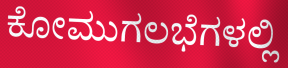
ಕೋಮುಗಲಭೆಗಳಲ್ಲಿ